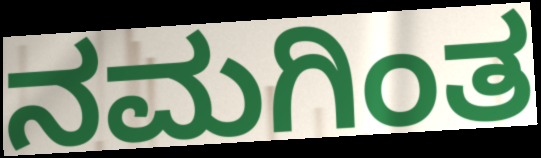
ನಮಗಿಂತ